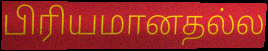
பிரியமானதல்ல